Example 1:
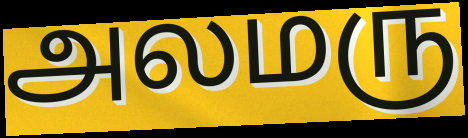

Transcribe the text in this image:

அலமரு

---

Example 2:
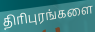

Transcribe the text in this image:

திரிபுரங்களை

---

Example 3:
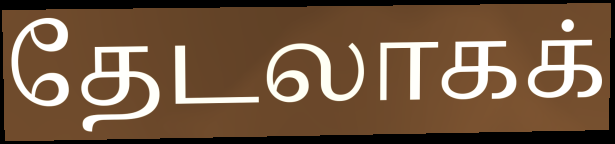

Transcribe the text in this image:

தேடலாகக்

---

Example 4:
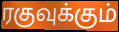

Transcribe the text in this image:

ரகுவுக்கும்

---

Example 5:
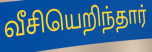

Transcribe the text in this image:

வீசியெறிந்தார்